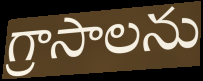
గ్రాసాలను